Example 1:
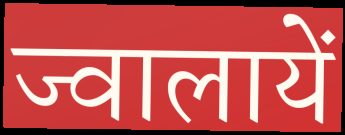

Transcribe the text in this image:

ज्वालायें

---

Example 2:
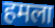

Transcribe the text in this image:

हमला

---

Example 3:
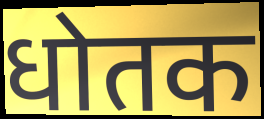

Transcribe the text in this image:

धोतक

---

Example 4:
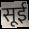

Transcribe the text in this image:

सूई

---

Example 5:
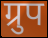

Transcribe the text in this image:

ग्रुप